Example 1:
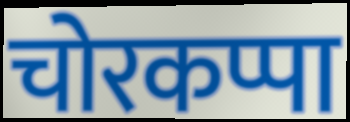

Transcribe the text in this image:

चोरकप्पा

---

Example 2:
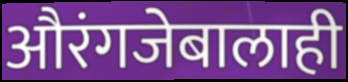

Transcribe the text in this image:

औरंगजेबालाही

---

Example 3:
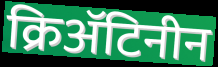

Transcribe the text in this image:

क्रिॲटिनीन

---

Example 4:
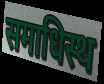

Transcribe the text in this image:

समाधिस्थ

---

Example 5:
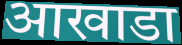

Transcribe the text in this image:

आखाडा